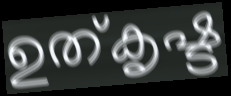
ഉത്കൃഷ്ട